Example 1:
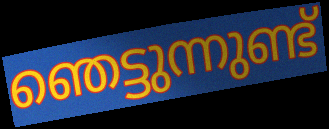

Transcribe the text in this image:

ഞെട്ടുന്നുണ്ട്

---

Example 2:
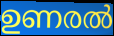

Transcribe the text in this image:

ഉണരൽ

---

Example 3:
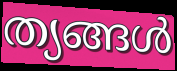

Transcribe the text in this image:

ത്യങ്ങൾ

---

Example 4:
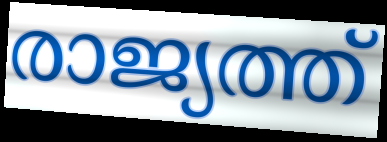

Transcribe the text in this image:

രാജ്യത്ത്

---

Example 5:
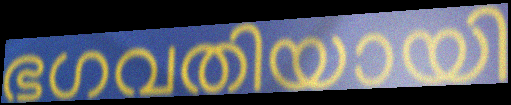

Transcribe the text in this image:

ഭഗവതിയായി